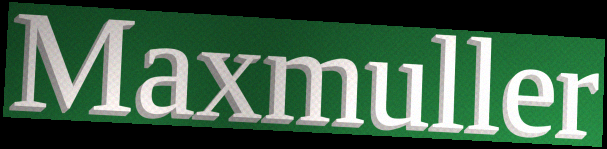
Maxmuller